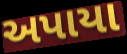
અપાયા